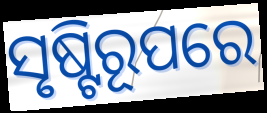
ସୃଷ୍ଟିରୂପରେ